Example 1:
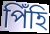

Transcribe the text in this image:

পিঁহি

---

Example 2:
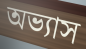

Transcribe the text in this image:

অভ্যাস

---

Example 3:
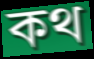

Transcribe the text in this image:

কথ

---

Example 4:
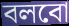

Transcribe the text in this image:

বলবো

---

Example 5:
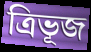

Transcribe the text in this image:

ত্ৰিভূজ